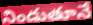
నిండుతూనే